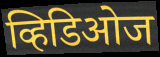
व्हिडिओज